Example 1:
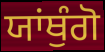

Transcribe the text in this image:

ਯਾਂਥੁੰਗੋ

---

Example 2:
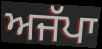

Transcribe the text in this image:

ਅਜੱਪਾ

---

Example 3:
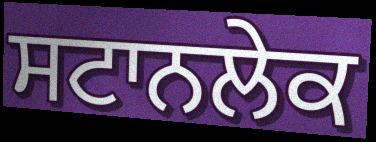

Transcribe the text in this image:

ਸਟਾਨਲੇਕ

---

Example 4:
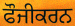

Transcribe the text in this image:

ਫੌਜੀਕਰਨ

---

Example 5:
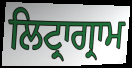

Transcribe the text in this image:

ਲਿਟ੍ਰਾਗ੍ਰਾਮ